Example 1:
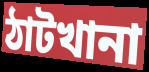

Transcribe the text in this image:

ঠাটখানা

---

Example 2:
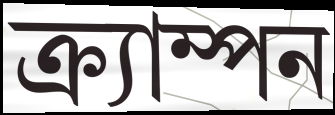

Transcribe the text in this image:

ক্র্যাম্পন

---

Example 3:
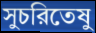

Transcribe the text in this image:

সুচরিতেষু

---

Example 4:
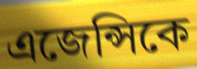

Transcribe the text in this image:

এজেন্সিকে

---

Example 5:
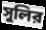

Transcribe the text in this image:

সুলির